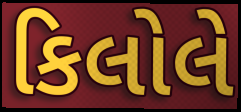
કિલોલે